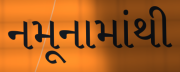
નમૂનામાંથી